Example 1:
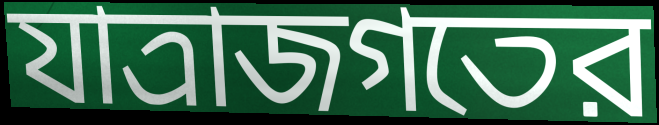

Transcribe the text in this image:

যাত্রাজগতের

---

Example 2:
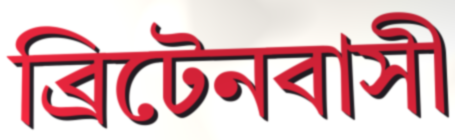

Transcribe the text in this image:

ব্রিটেনবাসী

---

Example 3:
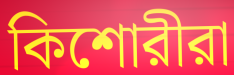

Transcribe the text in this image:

কিশোরীরা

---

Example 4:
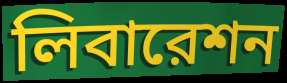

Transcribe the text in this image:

লিবারেশন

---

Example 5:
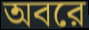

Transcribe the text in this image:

অবরে